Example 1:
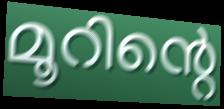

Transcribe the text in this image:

മൂറിന്റെ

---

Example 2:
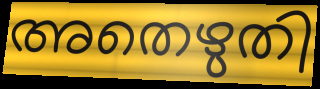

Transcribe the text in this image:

അതെഴുതി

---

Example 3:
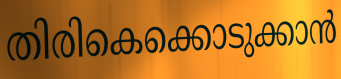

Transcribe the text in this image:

തിരികെക്കൊടുക്കാൻ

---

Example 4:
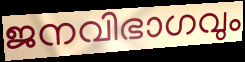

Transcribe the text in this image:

ജനവിഭാഗവും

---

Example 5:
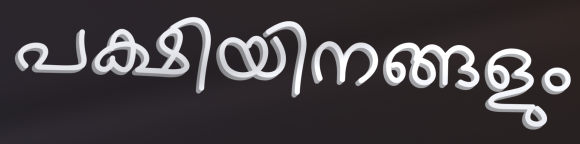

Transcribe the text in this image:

പക്ഷിയിനങ്ങളും